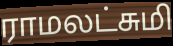
ராமலட்சுமி